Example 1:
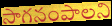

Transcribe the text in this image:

సాగనంపాలని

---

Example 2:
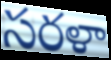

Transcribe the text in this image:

సరళా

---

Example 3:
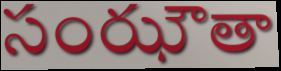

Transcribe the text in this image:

సంఝౌతా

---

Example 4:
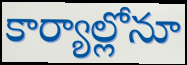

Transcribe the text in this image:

కార్యాల్లోనూ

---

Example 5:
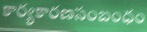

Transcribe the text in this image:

కార్యకారణసంబంధం